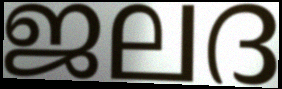
ജലദ